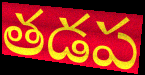
తడప